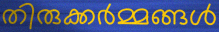
തിരുക്കർമ്മങ്ങൾ